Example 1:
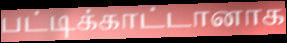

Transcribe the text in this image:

பட்டிக்காட்டானாக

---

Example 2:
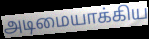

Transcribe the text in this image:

அடிமையாக்கிய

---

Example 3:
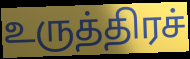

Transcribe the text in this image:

உருத்திரச்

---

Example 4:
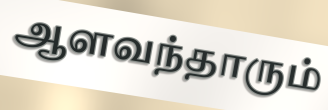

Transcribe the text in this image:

ஆளவந்தாரும்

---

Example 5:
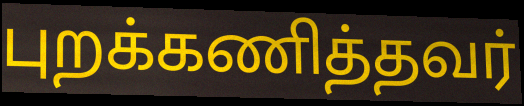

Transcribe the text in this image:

புறக்கணித்தவர்